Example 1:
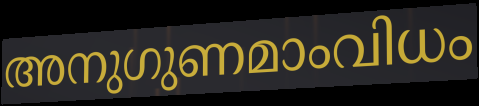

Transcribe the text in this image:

അനുഗുണമാംവിധം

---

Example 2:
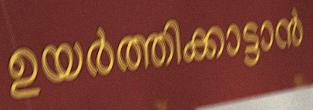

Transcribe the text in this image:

ഉയർത്തിക്കാട്ടാൻ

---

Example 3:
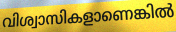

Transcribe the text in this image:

വിശ്വാസികളാണെങ്കിൽ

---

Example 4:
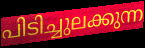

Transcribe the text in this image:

പിടിച്ചുലക്കുന്ന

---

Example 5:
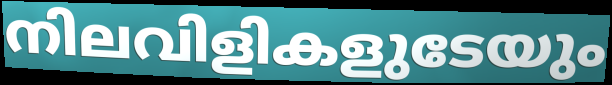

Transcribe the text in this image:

നിലവിളികളുടേയും